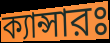
ক্যান্সারঃ